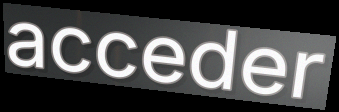
acceder